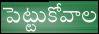
పెట్టుకోవాల